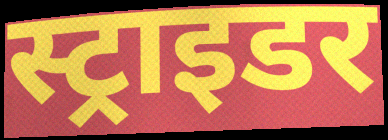
स्ट्राइडर